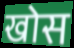
खोस